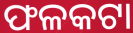
ଫଳକଟା